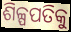
ଶିଳ୍ପପତିକୁ